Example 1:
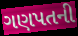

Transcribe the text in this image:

ગણપતની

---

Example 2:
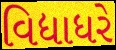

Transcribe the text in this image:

વિદ્યાધરે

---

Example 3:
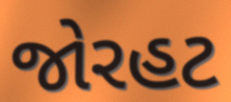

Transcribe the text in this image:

જોરહટ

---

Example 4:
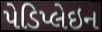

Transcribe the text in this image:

પેડિપ્લેઇન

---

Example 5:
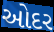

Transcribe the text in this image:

ઓદર